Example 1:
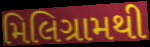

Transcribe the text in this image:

મિલિગ્રામથી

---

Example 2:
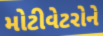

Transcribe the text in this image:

મોટીવેટરોને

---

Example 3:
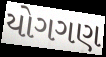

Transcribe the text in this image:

યોગગણ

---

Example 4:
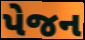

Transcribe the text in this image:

પેજન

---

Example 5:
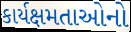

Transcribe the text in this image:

કાર્યક્ષમતાઓનો